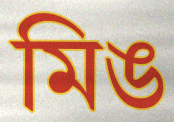
মিঙ